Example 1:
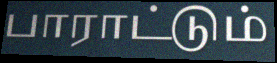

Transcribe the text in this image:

பாராட்டும்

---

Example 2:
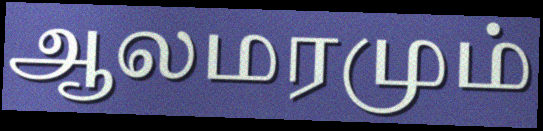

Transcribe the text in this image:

ஆலமரமும்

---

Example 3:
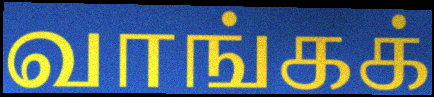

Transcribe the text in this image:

வாங்கக்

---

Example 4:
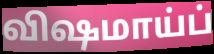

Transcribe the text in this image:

விஷமாய்ப்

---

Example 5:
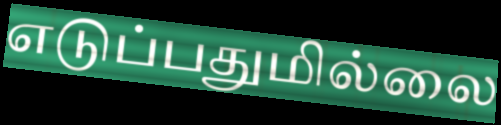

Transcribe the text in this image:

எடுப்பதுமில்லை